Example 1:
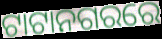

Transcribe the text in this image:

ଟାଟାନଗରରେ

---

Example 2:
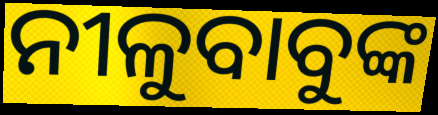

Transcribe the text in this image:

ନୀଳୁବାବୁଙ୍କ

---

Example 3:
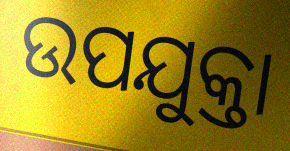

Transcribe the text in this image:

ଉପଯୁକ୍ତା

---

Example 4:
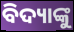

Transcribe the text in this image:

ବିଦ୍ୟାଙ୍କୁ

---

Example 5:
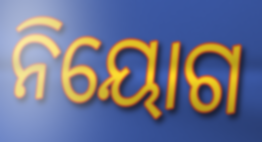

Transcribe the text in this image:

ନିୟୋଗ